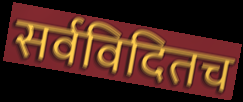
सर्वविदितच